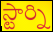
స్టార్ని